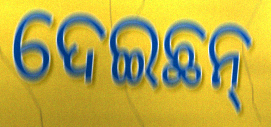
ଦେଇଛନ୍